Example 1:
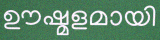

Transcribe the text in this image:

ഊഷ്മളമായി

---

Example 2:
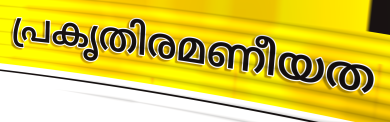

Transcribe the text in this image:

പ്രകൃതിരമണീയത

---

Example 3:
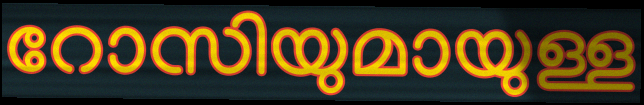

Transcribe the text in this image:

റോസിയുമായുള്ള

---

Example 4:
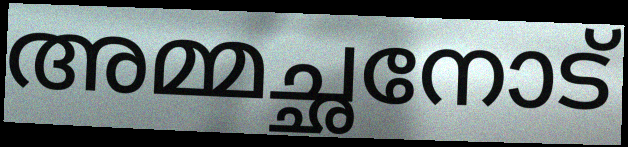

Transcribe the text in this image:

അമ്മച്ഛനോട്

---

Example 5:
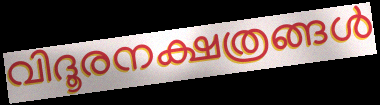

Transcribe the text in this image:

വിദൂരനക്ഷത്രങ്ങൾ